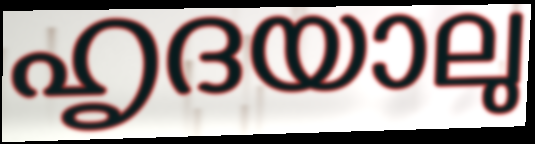
ഹൃദയാലു